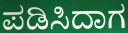
ಪಡಿಸಿದಾಗ